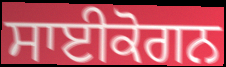
ਸਾਈਕੋਗਨ